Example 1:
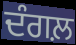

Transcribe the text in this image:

ਦੰਗਲ਼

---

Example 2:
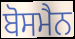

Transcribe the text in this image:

ਬੋਸਮੈਨ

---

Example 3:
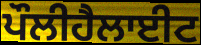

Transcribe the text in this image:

ਪੌਲੀਹੈਲਾਈਟ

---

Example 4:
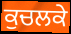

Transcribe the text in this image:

ਕੁਚਲਕੇ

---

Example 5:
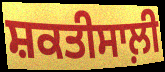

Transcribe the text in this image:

ਸ਼ਕਤੀਸਾਲ਼ੀ